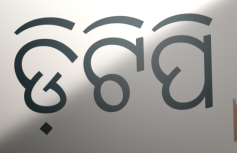
ଡ଼ିଟିପି